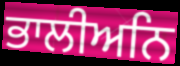
ਭਾਲੀਅਨਿ